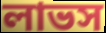
লাভস